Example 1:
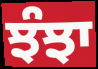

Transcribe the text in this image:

ਝੰਝਾ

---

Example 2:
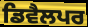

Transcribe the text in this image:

ਡਿਵੈਲਪਰ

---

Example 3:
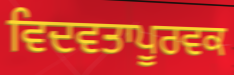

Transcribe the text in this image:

ਵਿਦਵਤਾਪੂਰਵਕ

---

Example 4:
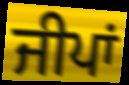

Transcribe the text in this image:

ਜੀਪਾਂ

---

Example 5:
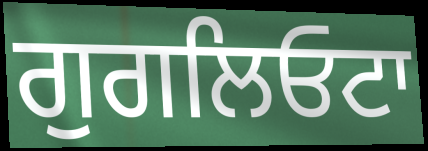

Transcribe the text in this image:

ਗੁਗਲਿਓਟਾ